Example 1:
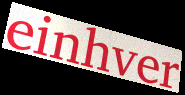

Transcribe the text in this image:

einhver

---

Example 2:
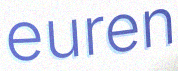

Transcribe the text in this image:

euren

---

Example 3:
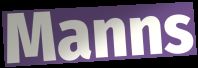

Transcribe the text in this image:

Manns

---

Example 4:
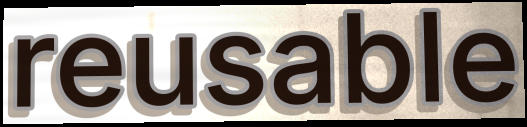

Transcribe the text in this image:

reusable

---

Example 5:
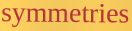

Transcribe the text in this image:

symmetries